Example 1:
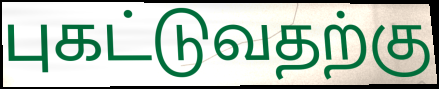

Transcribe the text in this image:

புகட்டுவதற்கு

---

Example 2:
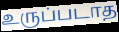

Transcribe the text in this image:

உருப்படாத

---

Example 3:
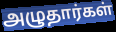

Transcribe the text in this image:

அழுதார்கள்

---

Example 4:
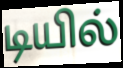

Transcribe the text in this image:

டியில்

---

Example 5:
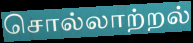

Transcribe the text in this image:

சொல்லாற்றல்